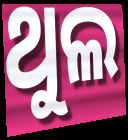
ଥୁଲ